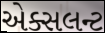
એક્સલન્ટ